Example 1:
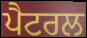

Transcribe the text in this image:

ਪੈਟਰਲ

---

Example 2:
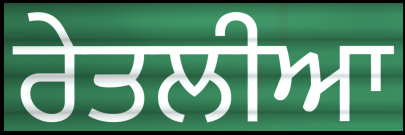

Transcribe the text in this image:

ਰੇਤਲੀਆ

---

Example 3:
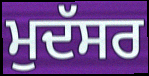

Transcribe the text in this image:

ਮੁਦੱਸਰ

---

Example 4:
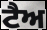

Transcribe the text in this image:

ਟੈਅ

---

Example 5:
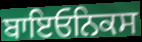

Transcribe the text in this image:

ਬਾਇਓਨਿਕਸ